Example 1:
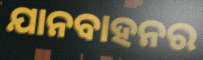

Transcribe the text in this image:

ଯାନବାହନର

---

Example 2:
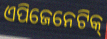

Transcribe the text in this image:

ଏପିଜେନେଟିକ୍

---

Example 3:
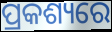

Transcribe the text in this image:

ପ୍ରକଶ୍ୟରେ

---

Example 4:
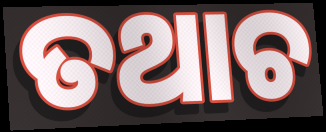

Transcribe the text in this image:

ତଥାଚ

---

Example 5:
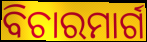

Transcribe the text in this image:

ବିଚାରମାର୍ଗ